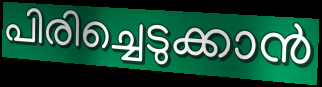
പിരിച്ചെടുക്കാൻ